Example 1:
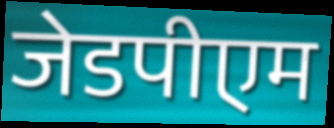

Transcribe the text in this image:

जेडपीएम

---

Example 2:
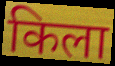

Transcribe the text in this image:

किला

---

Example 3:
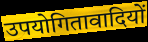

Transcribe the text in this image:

उपयोगितावादियों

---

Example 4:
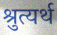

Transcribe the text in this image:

श्रुत्यर्थ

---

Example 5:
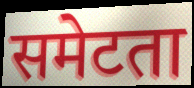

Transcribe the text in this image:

समेटता